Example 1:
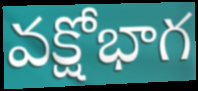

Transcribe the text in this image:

వక్షోభాగ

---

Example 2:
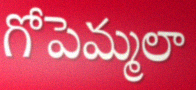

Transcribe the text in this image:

గోపెమ్మలా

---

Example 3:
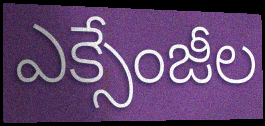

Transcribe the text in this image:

ఎక్సేంజీల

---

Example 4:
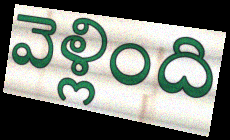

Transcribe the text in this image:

వెళ్లింది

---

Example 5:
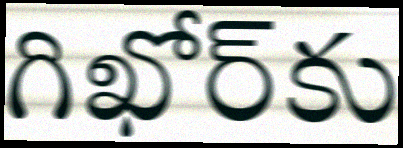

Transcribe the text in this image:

గిఖోర్‌కు